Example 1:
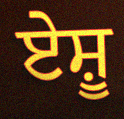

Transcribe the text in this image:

ਏਸ਼ੂ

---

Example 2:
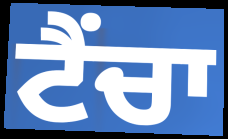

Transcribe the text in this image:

ਟੈਂਚਾ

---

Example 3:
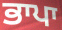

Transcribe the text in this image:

ਭਾਪਾ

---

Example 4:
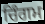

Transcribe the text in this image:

ਚਿੰਗਮ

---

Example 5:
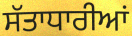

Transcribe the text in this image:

ਸੱਤਾਧਾਰੀਆਂ